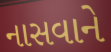
નાસવાને